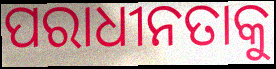
ପରାଧୀନତାକୁ